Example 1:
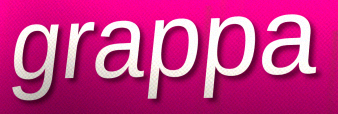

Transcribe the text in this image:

grappa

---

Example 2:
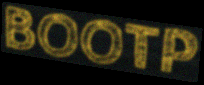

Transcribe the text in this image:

BOOTP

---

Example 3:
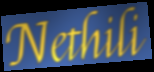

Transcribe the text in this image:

Nethili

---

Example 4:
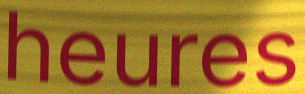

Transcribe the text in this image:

heures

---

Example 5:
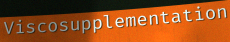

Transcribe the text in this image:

Viscosupplementation